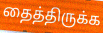
தைத்திருக்க